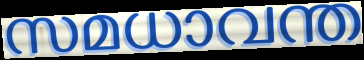
സമധാവന്ത